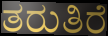
ತರುತಿರೆ